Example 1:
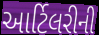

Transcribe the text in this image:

આર્ટિલરીની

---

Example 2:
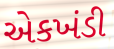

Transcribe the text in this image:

એકખંડી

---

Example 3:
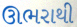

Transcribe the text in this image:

ઊભરાથી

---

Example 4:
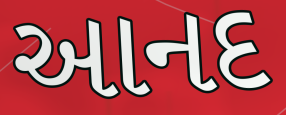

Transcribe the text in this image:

આનદ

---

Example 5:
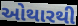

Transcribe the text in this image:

ઓથારથી